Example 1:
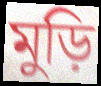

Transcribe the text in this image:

মুড়ি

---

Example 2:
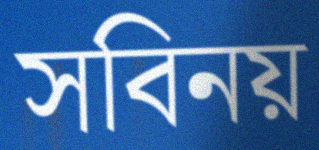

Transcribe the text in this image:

সবিনয়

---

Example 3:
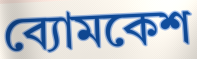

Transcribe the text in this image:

ব্যোমকেশ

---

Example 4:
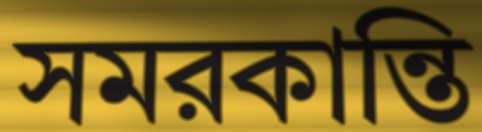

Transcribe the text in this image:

সমরকান্তি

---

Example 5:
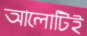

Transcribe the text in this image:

আলোটিই